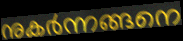
നുകർന്നങ്ങനെ